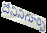
దేనినిగూర్చి